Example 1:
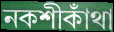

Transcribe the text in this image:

নকশীকাঁথা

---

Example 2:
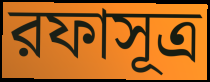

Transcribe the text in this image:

রফাসূত্র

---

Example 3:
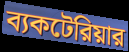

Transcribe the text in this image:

ব্যকটেরিয়ার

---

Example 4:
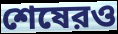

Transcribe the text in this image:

শেষেরও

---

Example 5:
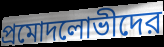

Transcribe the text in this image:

প্রমোদলোভীদের